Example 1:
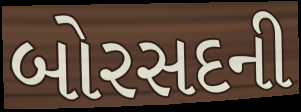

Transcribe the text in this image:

બોરસદની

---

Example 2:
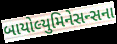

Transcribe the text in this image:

બાયોલ્યુમિનેસન્સના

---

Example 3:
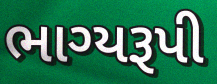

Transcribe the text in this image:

ભાગ્યરૂપી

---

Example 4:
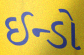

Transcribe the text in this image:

ઈન્ડો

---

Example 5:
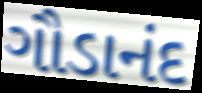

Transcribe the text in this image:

ગૌડાનંદ